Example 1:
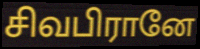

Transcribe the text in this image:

சிவபிரானே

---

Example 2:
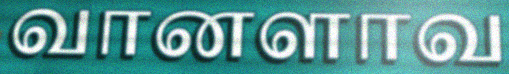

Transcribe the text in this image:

வானளாவ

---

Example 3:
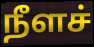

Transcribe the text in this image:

நீளச்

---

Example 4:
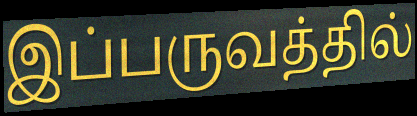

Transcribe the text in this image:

இப்பருவத்தில்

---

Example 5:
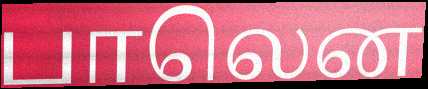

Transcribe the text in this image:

பாலென